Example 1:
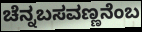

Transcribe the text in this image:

ಚೆನ್ನಬಸವಣ್ಣನೆಂಬ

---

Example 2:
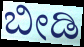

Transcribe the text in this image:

ಬೀಡಿ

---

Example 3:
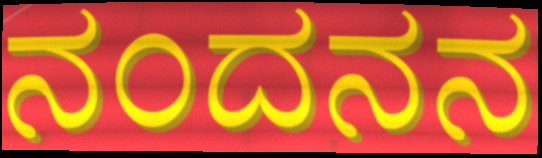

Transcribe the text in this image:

ನಂದನನ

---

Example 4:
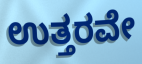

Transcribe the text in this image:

ಉತ್ತರವೇ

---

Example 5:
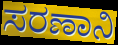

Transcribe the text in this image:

ಸರಣಾನಿ